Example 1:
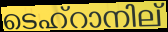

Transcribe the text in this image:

ടെഹ്റാനില്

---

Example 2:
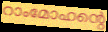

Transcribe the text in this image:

റാംമോഹന്റെ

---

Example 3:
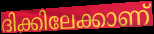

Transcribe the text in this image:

ദിക്കിലേക്കാണ്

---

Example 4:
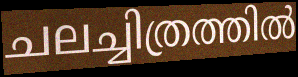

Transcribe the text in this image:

ചലച്ചിത്രത്തിൽ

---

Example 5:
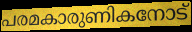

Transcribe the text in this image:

പരമകാരുണികനോട്